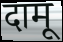
दामू